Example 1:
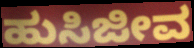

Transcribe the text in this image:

ಹುಸಿಜೀವ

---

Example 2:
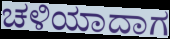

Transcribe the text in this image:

ಚಳಿಯಾದಾಗ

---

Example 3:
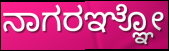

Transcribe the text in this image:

ನಾಗರಞ್ಞೋ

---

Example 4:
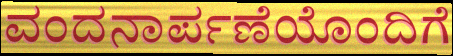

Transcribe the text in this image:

ವಂದನಾರ್ಪಣೆಯೊಂದಿಗೆ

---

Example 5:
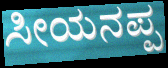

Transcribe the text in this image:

ಸೀಯನಪ್ಪ